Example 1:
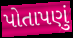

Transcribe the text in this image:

પોતાપણું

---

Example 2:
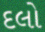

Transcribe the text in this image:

દલો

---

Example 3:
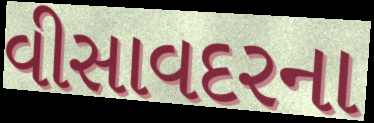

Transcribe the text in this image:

વીસાવદરના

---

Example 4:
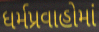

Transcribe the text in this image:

ધર્મપ્રવાહોમાં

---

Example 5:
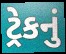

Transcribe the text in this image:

ટ્રેકનું